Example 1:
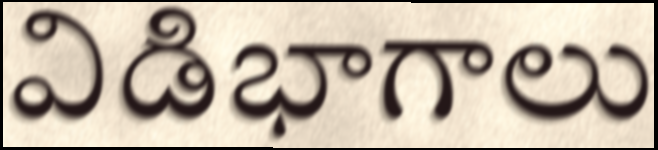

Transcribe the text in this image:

విడిభాగాలు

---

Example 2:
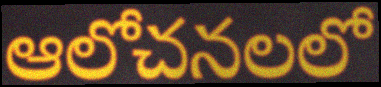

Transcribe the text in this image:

ఆలోచనలలో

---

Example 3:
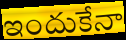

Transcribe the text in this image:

ఇందుకేనా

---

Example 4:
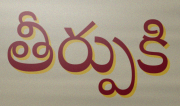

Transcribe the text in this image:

తీర్పుకి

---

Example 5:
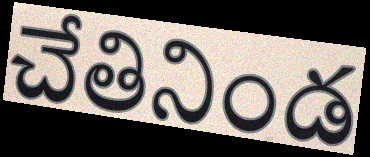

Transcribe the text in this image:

చేతినిండ